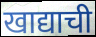
खाद्याची